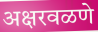
अक्षरवळणे